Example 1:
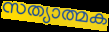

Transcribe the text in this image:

സത്യാത്മക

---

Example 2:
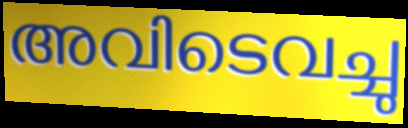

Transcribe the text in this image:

അവിടെവച്ചു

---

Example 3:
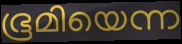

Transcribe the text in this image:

ഭൂമിയെന്ന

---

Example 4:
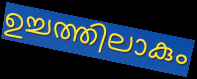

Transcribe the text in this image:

ഉച്ചത്തിലാകും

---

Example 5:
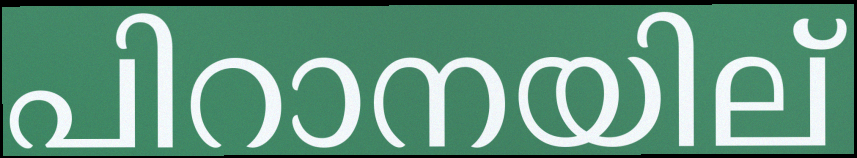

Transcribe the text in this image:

പിറാനയില്